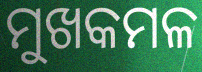
ମୁଖକମଳ